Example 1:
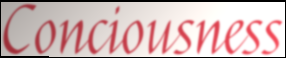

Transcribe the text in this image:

Conciousness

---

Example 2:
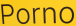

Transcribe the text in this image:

Porno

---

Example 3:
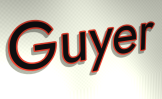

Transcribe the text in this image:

Guyer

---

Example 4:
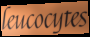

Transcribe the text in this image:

leucocytes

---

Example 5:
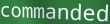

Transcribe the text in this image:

commanded